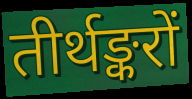
तीर्थङ्करों